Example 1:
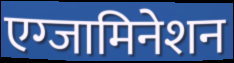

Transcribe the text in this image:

एग्‍जामिनेशन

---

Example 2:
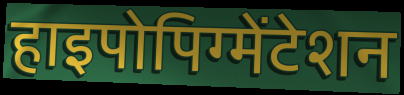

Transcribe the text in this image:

हाइपोपिग्मेंटेशन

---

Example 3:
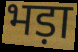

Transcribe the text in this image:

भड़ा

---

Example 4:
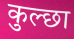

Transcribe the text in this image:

कुल्छा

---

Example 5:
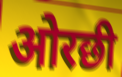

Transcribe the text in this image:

ओरछी